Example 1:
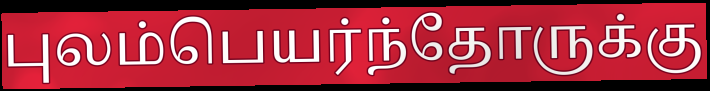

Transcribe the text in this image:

புலம்பெயர்ந்தோருக்கு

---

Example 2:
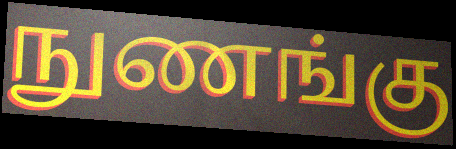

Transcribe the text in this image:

நுணங்கு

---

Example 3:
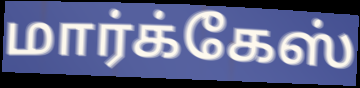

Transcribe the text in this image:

மார்க்கேஸ்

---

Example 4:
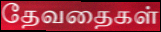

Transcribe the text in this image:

தேவதைகள்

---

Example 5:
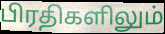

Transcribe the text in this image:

பிரதிகளிலும்